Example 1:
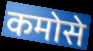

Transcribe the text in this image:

कमोसे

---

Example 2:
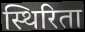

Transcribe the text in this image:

स्थिरिता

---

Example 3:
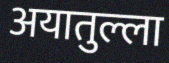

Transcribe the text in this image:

अयातुल्‍ला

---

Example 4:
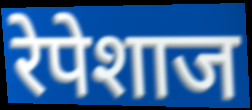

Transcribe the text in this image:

रेपेशाज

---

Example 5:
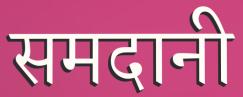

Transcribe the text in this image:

समदानी